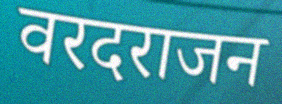
वरदराजन